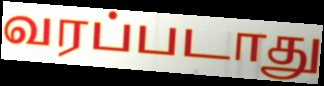
வரப்படாது